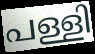
പള്ളി